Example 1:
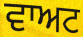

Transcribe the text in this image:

ਵਾਅਟ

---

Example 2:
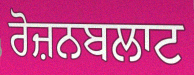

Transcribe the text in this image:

ਰੋਜ਼ਨਬਲਾਟ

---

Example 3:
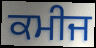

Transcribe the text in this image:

ਕਮੀਜ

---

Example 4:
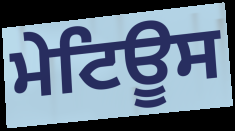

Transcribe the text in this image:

ਮੇਟਿਊਸ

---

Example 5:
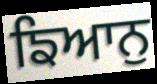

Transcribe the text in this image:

ਙਿਆਨੁ